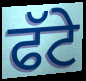
ਫੱਟੇ